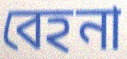
বেহনা